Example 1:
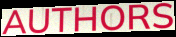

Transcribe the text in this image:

AUTHORS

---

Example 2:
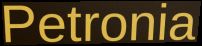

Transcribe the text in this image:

Petronia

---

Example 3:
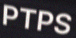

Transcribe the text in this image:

PTPS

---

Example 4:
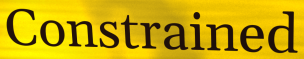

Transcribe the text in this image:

Constrained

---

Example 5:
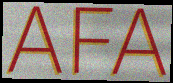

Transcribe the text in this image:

AFA